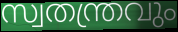
സ്വതന്ത്രവും